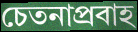
চেতনাপ্রবাহ